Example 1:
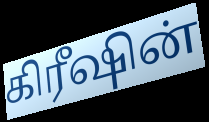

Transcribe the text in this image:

கிரீஷின்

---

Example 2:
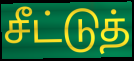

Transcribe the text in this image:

சீட்டுத்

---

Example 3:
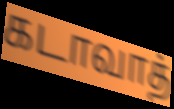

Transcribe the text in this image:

கடாவாத்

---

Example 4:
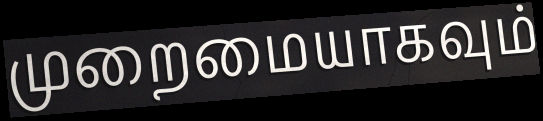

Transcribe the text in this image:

முறைமையாகவும்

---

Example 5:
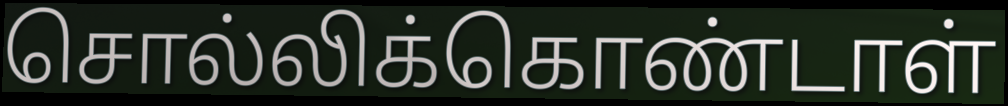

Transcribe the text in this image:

சொல்லிக்கொண்டாள்